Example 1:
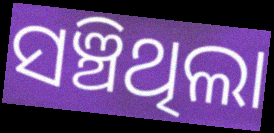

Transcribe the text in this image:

ସଞ୍ଚିଥିଲା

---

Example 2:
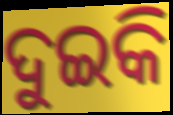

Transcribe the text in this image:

ଦୁଇକି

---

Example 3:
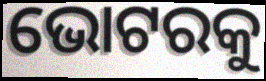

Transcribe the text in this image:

ଭୋଟରକୁ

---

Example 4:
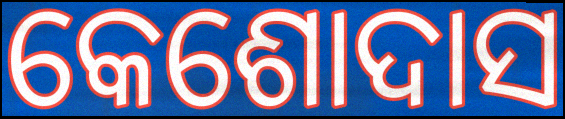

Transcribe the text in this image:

କେଶୋଦାସ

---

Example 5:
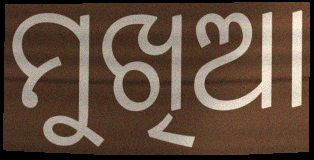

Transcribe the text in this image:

ମୁଖିଆ